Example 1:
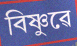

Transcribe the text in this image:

বিষ্ণুৱে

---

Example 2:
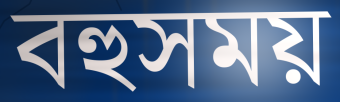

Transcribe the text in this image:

বহুসময়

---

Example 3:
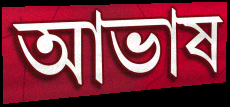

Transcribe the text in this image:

আভাষ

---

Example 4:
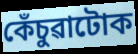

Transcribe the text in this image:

কেঁচুৱাটোক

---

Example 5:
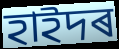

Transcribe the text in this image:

হাইদৰ